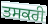
ਤਸਕਰੀ